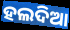
ହଲଦିଆ